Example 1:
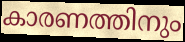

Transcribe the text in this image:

കാരണത്തിനും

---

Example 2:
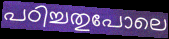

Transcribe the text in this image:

പഠിച്ചതുപോലെ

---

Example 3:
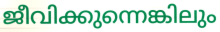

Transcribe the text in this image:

ജീവിക്കുന്നെങ്കിലും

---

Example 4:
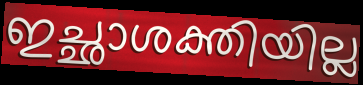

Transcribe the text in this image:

ഇച്ഛാശക്തിയില്ല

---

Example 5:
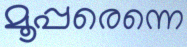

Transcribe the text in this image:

മൂപ്പരെന്നെ